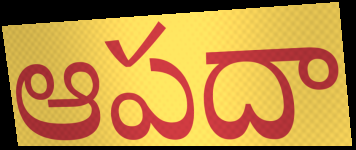
ఆపదా